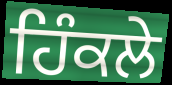
ਹਿੰਕਲੇ